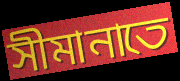
সীমানাতে